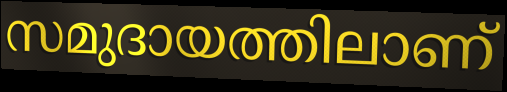
സമുദായത്തിലാണ്